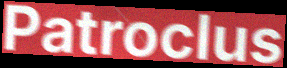
Patroclus